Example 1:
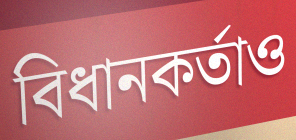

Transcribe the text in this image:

বিধানকর্তাও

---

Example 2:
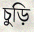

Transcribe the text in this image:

চুড়ি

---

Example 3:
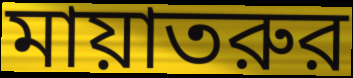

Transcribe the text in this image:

মায়াতরুর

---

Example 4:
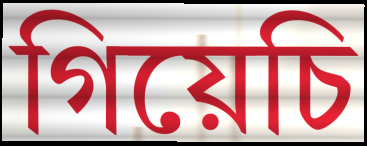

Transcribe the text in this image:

গিয়েচি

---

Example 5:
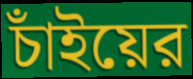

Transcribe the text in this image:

চাঁইয়ের